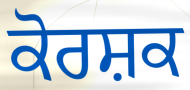
ਕੋਰਸ਼ਕ